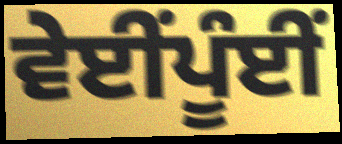
ਵੇਈਂਪੂੰਈਂ